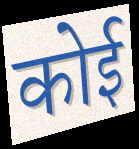
कोई